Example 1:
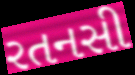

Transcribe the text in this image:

રતનસી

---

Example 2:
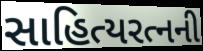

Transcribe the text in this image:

સાહિત્યરત્નની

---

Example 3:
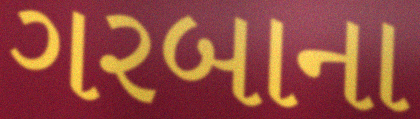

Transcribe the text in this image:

ગરબાના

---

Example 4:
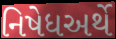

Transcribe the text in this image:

નિષેધઅર્થે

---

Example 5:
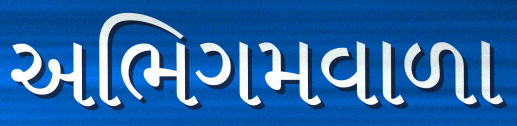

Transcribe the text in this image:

અભિગમવાળા